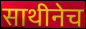
साथीनेच